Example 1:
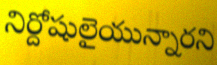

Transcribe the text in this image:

నిర్దోషులైయున్నారని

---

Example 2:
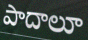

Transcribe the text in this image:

పాదాలూ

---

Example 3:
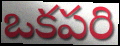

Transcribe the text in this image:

ఒకపరి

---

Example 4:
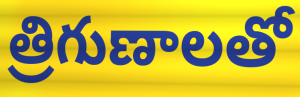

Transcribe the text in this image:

త్రిగుణాలతో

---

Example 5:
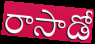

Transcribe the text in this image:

రాసాడో